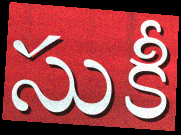
సుకీ